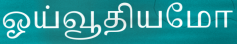
ஓய்வூதியமோ